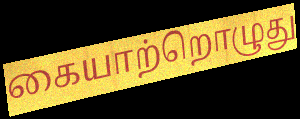
கையாற்றொழுது